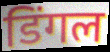
डिंगल